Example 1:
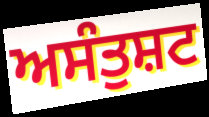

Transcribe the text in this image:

ਅਸੰਤੁਸ਼ਟ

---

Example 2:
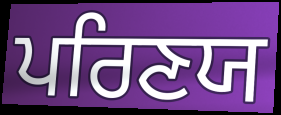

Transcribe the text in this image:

ਪਰਿਣਯ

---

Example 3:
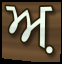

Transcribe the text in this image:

ਅ਼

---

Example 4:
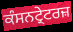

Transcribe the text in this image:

ਕੰਸਨਟ੍ਰੇਟਰਜ਼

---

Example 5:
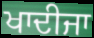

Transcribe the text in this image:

ਖਾਦੀਜਾ